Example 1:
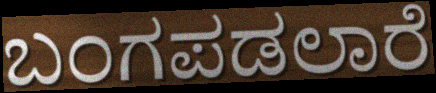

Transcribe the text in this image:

ಬಂಗಪಡಲಾರೆ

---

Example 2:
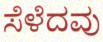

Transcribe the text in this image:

ಸೆಳೆದವು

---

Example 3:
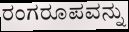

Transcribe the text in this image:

ರಂಗರೂಪವನ್ನು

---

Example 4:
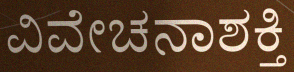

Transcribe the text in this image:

ವಿವೇಚನಾಶಕ್ತಿ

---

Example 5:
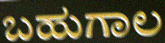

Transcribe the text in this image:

ಬಹುಗಾಲ